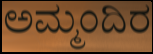
ಅಮ್ಮಂದಿರ